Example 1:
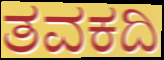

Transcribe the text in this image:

ತವಕದಿ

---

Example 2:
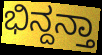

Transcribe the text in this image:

ಭಿನ್ದನ್ತಾ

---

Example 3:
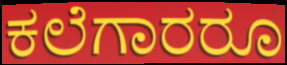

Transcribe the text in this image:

ಕಲೆಗಾರರೂ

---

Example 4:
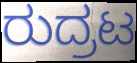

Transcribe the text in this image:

ರುದ್ರಟ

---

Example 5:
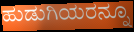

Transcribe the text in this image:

ಹುಡುಗಿಯರನ್ನೂ